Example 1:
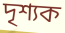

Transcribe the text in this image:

দৃশ্যক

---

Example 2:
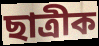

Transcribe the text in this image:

ছাত্ৰীক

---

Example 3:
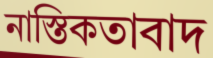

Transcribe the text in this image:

নাস্তিকতাবাদ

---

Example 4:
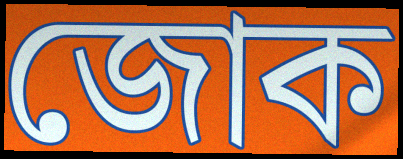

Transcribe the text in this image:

জোক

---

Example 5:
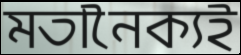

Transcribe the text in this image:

মতানৈক্যই